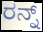
ರನ್ನ್